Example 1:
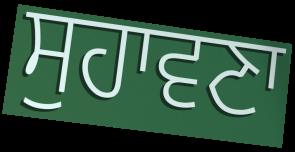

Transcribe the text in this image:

ਸੁਹਾਵਣਾ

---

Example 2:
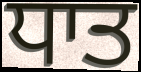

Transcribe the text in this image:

ਧਾਤ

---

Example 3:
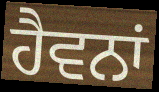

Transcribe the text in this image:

ਹੈਵਨਾਂ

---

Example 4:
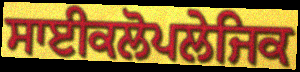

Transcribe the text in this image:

ਸਾਈਕਲੋਪਲੇਜਿਕ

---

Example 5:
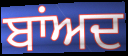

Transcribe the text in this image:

ਬਾਂਅਦ